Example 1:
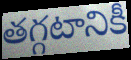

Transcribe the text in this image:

తగ్గటానికీ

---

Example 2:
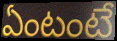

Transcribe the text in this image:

ఏంటంటే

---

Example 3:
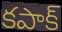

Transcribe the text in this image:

కపాక్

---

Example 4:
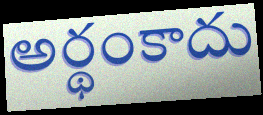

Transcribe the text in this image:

అర్థంకాదు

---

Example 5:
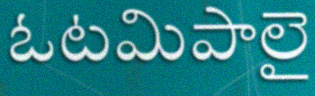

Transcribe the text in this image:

ఓటమిపాలై